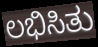
ಲಭಿಸಿತು